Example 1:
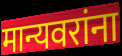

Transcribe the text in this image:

मान्यवरांना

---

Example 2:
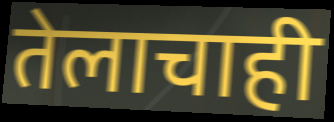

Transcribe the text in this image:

तेलाचाही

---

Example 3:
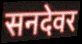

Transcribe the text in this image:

सनदेवर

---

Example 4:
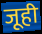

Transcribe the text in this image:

जूही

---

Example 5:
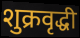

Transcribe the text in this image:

शुक्रवृद्धी